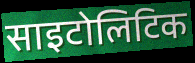
साइटोलिटिक